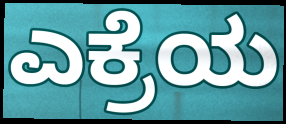
ಎಕ್ರೆಯ